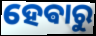
ହେଵାରୁ